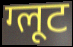
ग्लूट